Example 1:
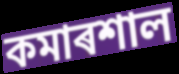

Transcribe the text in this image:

কমাৰশাল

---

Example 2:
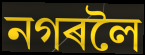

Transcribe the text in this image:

নগৰলৈ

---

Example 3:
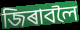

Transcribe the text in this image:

জিৰাবলৈ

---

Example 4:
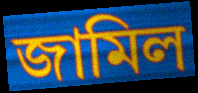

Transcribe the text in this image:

জামিল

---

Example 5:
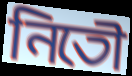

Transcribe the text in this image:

নিতৌ